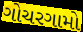
ગોચરગામો